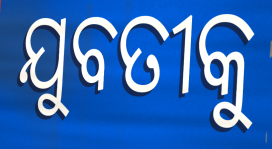
ଯୁବତୀକୁ